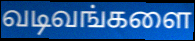
வடிவங்களை